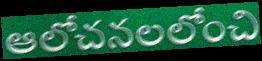
ఆలోచనలలోంచి